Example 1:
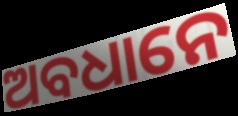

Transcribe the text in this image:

ଅବଧାନେ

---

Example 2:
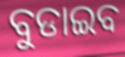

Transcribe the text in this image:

ବୁଡାଇବ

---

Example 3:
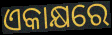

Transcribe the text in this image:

ଏକାକ୍ଷରେ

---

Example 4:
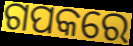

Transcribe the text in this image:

ଗପକରେ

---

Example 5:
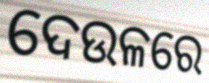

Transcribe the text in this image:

ଦେଉଳରେ